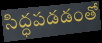
సిద్ధపడడంతో